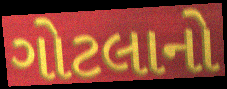
ગોટલાનો